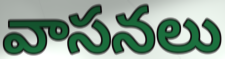
వాసనలు